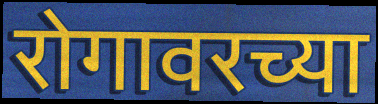
रोगावरच्या